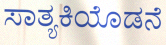
ಸಾತ್ಯಕಿಯೊಡನೆ